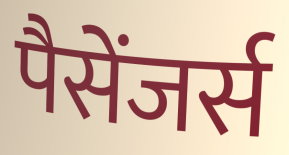
पैसेंजर्स